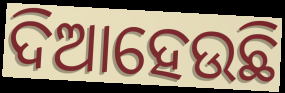
ଦିଆହେଉଛି